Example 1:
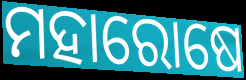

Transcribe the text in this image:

ମହାରୋଷେ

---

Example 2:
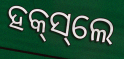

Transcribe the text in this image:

ହକ୍‌ସ୍‌ଲେ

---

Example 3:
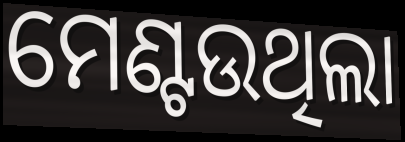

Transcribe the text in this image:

ମେଣ୍ଟଉଥିଲା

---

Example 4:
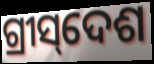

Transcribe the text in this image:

ଗ୍ରୀସ୍‌ଦେଶ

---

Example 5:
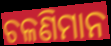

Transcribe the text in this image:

ଚଳଣିମାନ